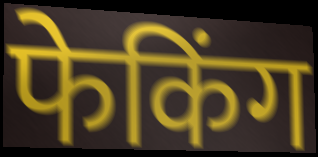
फेकिंग